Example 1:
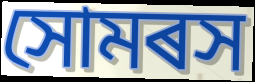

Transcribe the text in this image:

সোমৰস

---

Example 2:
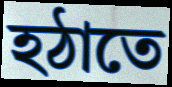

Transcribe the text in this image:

হঠাতে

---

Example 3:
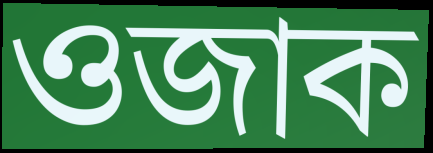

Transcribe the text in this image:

ওজাক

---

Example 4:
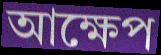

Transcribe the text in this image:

আক্ষেপ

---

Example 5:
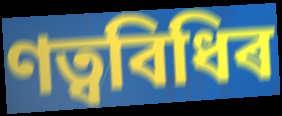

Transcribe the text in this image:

ণত্ববিধিৰ